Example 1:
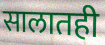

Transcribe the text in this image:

सालातही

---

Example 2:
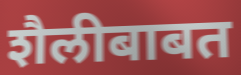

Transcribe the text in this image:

शैलीबाबत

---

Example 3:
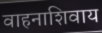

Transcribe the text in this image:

वाहनाशिवाय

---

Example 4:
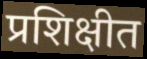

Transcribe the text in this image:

प्रशिक्षीत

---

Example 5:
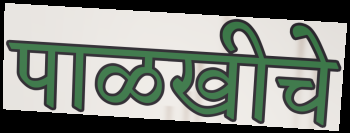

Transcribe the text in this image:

पाळखीचे